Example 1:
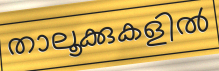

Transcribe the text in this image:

താലൂക്കുകളിൽ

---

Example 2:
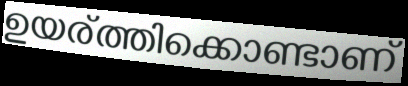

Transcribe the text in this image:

ഉയര്ത്തിക്കൊണ്ടാണ്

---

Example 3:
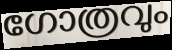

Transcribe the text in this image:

ഗോത്രവും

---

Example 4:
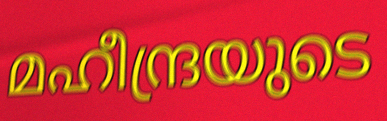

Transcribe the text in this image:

മഹീന്ദ്രയുടെ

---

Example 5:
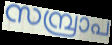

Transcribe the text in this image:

സമ്പ്രാപ